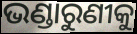
ଭଣ୍ଡାରୁଣୀକୁ